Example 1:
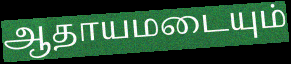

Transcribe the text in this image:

ஆதாயமடையும்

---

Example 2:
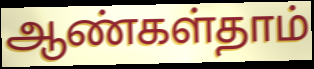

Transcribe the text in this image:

ஆண்கள்தாம்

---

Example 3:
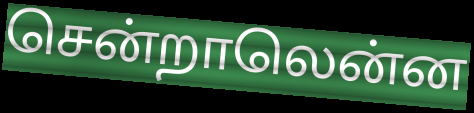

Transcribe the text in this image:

சென்றாலென்ன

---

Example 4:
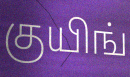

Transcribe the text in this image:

குயிங்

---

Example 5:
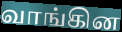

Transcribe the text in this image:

வாங்கின